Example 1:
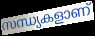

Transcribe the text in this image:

സന്ധ്യകളാണ്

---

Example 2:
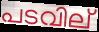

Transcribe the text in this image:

പടവില്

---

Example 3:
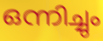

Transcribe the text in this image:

ഒന്നിച്ചും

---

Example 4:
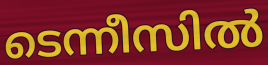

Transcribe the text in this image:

ടെന്നീസിൽ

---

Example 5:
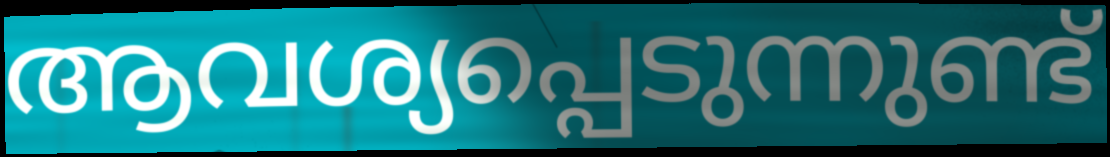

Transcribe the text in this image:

ആവശ്യപ്പെടുന്നുണ്ട്